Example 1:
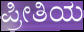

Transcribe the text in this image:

ಪ್ರೀತಿಯ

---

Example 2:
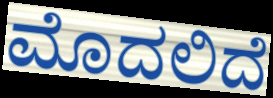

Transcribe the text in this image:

ಮೊದಲಿದೆ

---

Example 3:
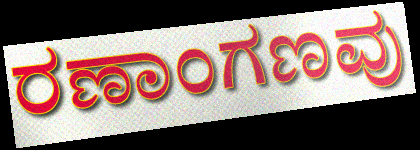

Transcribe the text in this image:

ರಣಾಂಗಣವು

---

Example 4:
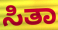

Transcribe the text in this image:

ಸಿತಾ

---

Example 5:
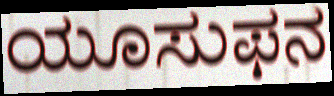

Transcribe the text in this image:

ಯೂಸುಫನ